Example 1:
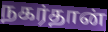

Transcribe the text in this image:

நகர்தான்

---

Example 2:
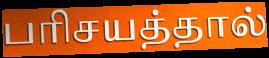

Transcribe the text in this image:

பரிசயத்தால்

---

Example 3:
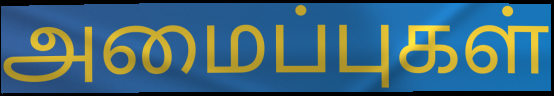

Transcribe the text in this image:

அமைப்புகள்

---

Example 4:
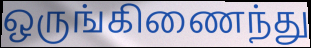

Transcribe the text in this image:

ஒருங்கிணைந்து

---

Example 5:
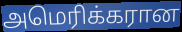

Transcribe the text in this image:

அமெரிக்கரான